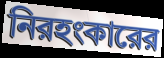
নিরহংকারের